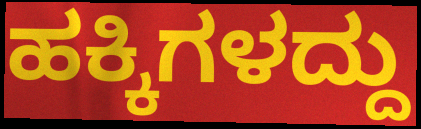
ಹಕ್ಕಿಗಳದ್ದು